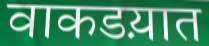
वाकडय़ात